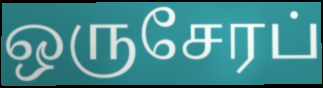
ஒருசேரப்